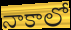
నాకాలో